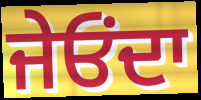
ਜੇਓੰਦਾ